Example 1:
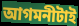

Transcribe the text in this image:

আগমনীটাই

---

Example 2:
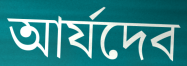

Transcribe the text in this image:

আর্যদেব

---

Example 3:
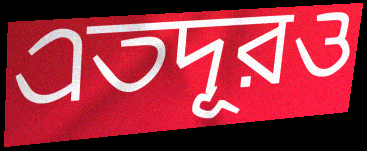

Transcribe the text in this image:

এতদূরও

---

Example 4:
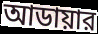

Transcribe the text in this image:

আডায়ার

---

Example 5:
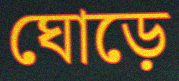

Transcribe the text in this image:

ঘোড়ে